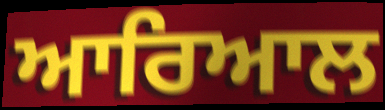
ਆਰਿਆਲ